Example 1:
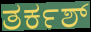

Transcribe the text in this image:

ತರ್ಕಶ್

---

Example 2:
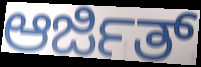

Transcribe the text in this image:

ಆರ್ಜಿತ್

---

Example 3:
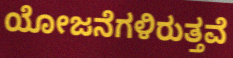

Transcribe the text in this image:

ಯೋಜನೆಗಳಿರುತ್ತವೆ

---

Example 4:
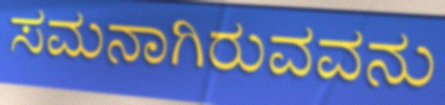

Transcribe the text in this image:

ಸಮನಾಗಿರುವವನು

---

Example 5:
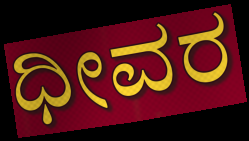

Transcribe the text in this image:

ಧೀವರ